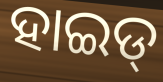
ହାଇଡ୍